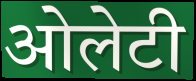
ओलेटी